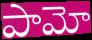
పామో